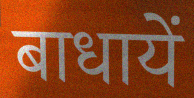
बाधायें